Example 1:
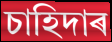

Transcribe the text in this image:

চাহিদাৰ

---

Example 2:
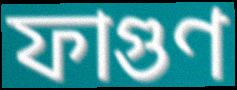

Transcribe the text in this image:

ফাগুণ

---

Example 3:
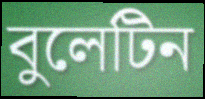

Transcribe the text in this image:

বুলেটিন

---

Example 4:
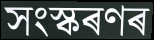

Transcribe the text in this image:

সংস্কৰণৰ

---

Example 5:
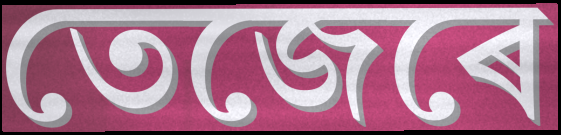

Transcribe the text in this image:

তেজেৰে